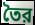
তৈর